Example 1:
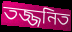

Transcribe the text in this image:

তজ্জনিত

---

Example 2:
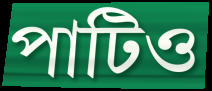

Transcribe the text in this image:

পাটিও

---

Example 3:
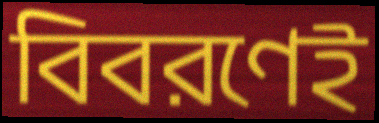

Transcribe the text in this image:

বিবরণেই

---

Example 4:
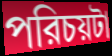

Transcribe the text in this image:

পরিচয়টা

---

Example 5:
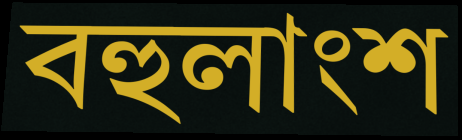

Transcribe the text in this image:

বহুলাংশ